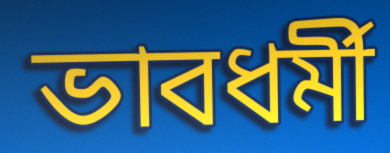
ভাবধর্মী